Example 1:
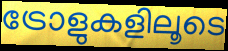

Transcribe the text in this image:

ട്രോളുകളിലൂടെ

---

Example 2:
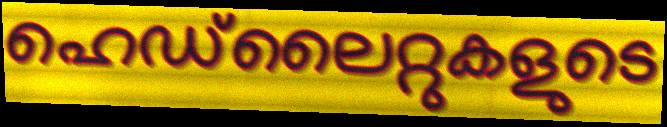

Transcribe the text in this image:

ഹെഡ്‌ലൈറ്റുകളുടെ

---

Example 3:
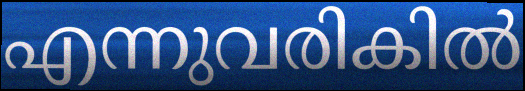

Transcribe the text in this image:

എന്നുവരികിൽ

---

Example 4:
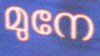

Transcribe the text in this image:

മുനേ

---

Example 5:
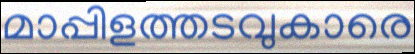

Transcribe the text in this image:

മാപ്പിളത്തടവുകാരെ